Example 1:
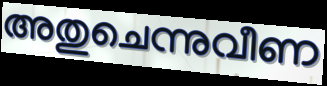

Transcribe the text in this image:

അതുചെന്നുവീണ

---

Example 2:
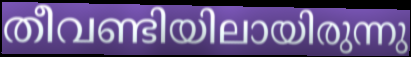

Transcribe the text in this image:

തീവണ്ടിയിലായിരുന്നു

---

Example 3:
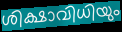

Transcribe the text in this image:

ശിക്ഷാവിധിയും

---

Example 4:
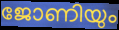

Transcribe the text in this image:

ജോണിയും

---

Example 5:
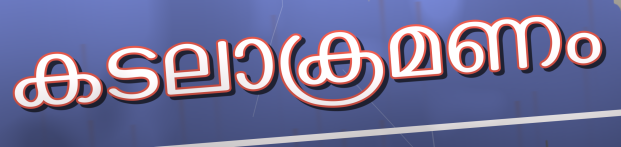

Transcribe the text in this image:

കടലാക്രമണം